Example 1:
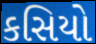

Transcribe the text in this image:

કસિયો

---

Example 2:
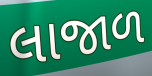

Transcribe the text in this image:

લાજાળ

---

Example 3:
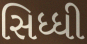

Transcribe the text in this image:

સિધ્ધી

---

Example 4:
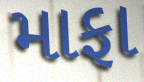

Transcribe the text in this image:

માફા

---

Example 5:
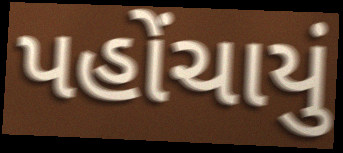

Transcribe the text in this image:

પહોંચાયું